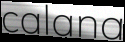
calana